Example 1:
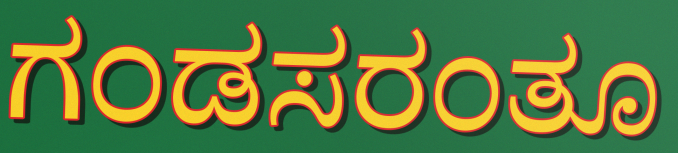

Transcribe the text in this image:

ಗಂಡಸರಂತೂ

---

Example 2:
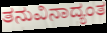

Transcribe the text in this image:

ತನುವಿನಾದ್ಯಂತ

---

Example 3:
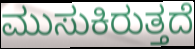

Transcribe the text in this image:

ಮುಸುಕಿರುತ್ತದೆ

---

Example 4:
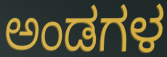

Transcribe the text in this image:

ಅಂಡಗಳ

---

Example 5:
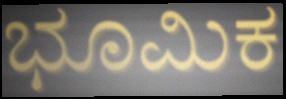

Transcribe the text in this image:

ಭೂಮಿಕ